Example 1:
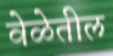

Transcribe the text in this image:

वेळेतील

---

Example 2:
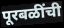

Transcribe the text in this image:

पूरबळींची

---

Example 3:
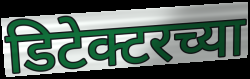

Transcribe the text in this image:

डिटेक्टरच्या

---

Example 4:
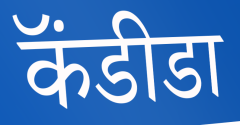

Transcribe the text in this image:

कॅंडीडा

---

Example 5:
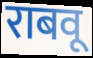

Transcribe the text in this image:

राबवू